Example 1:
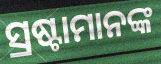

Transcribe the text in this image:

ସ୍ରଷ୍ଟାମାନଙ୍କ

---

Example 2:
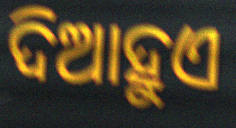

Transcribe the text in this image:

ଦିଆହୁଏ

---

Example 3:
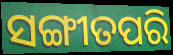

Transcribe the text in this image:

ସଙ୍ଗୀତପରି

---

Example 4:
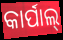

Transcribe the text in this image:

କାର୍ପାଲ୍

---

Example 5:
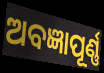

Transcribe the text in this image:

ଅବଜ୍ଞାପୂର୍ଣ୍ଣ